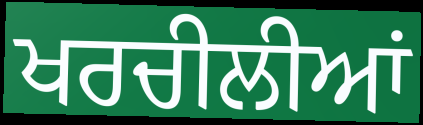
ਖਰਚੀਲੀਆਂ